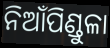
ନିଆଁପିଣ୍ଡୁଳା